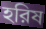
হরিষ